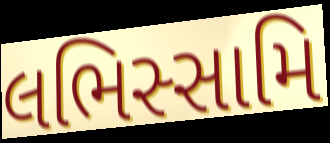
લભિસ્સામિ